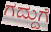
ಗದ್ದುಗೆ